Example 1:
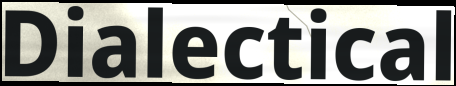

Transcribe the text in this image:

Dialectical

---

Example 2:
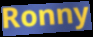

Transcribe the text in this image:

Ronny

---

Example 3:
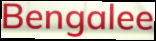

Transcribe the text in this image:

Bengalee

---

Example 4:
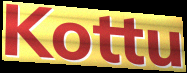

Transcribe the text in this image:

Kottu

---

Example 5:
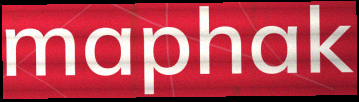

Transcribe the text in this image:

maphak